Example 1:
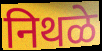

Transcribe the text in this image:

निथळे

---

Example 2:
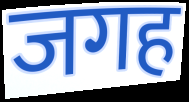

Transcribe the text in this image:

जगह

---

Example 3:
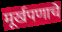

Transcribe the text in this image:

मूर्खपणाचे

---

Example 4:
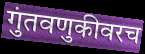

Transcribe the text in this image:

गुंतवणुकीवरच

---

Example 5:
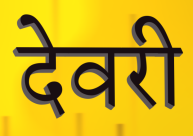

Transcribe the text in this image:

देवरी